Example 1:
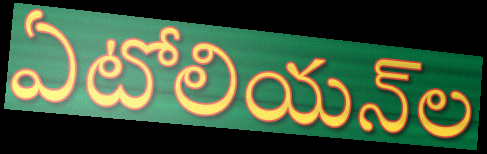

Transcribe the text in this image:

ఏటోలియన్‌ల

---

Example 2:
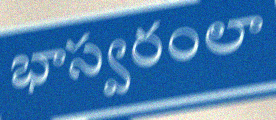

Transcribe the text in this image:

భాస్వరంలా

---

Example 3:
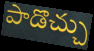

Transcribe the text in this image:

పాడొచ్చు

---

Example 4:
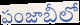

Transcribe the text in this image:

పంజాబీలో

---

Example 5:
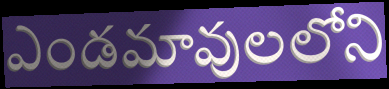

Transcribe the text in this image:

ఎండమావులలోని